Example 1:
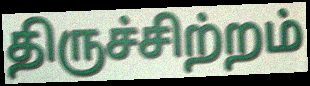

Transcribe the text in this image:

திருச்சிற்றம்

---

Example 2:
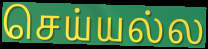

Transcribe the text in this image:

செய்யல்ல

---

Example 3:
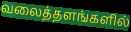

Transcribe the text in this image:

வலைத்தளங்களில்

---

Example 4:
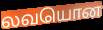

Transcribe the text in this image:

லவயொன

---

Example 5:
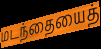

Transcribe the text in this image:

மடந்தையைத்